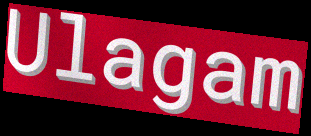
Ulagam